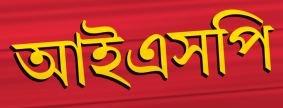
আইএসপি